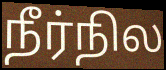
நீர்நில